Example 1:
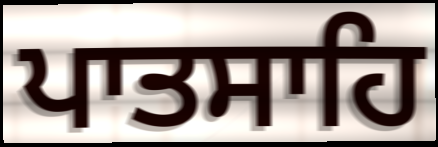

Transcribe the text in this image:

ਪਾਤਸਾਹਿ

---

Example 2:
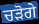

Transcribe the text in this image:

ਚੜੋਗੇ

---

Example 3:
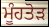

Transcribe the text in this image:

ਮੂੰਹਤੋੜ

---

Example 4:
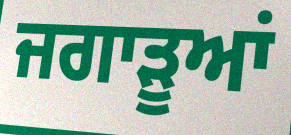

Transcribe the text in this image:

ਜਗਾੜੂਆਂ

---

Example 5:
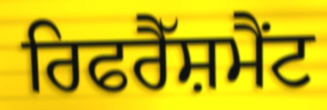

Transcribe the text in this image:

ਰਿਫਰੈੱਸ਼ਮੈਂਟ